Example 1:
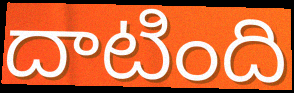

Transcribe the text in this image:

దాటింది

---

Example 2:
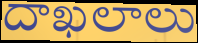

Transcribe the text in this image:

దాఖలాలు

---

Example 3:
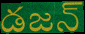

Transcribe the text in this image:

డజన్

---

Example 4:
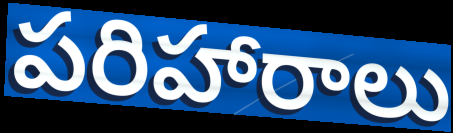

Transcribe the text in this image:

పరిహారాలు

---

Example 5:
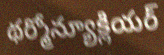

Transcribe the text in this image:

థర్మోన్యూక్లియర్